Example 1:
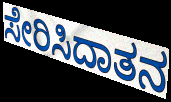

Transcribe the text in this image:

ಸೇರಿಸಿದಾತನ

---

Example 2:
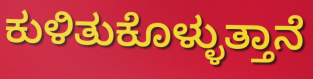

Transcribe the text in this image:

ಕುಳಿತುಕೊಳ್ಳುತ್ತಾನೆ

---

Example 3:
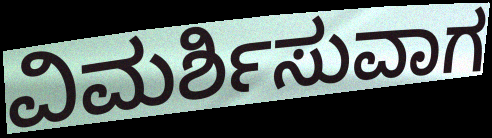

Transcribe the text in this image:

ವಿಮರ್ಶಿಸುವಾಗ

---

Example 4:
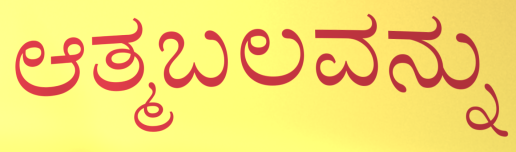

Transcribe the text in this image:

ಆತ್ಮಬಲವನ್ನು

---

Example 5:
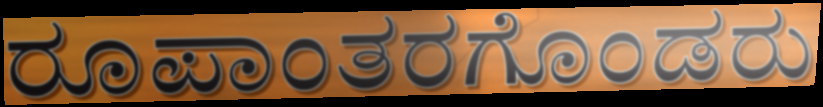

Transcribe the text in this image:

ರೂಪಾಂತರಗೊಂಡರು